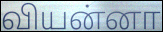
வியன்னா